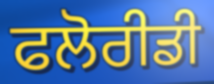
ਫਲੋਰੀਡੀ